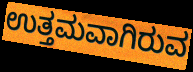
ಉತ್ತಮವಾಗಿರುವ